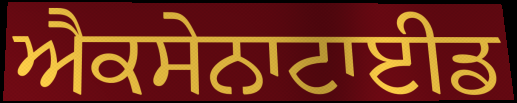
ਐਕਸੇਨਾਟਾਈਡ